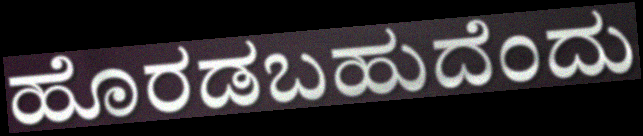
ಹೊರಡಬಹುದೆಂದು